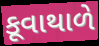
કૂવાથાળે